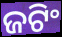
ଜଟିଂ